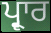
ਪ੍ਰ੍ਵਾਰ